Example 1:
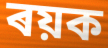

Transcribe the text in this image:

ৰয়ক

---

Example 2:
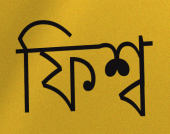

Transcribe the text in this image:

ফিশ্ব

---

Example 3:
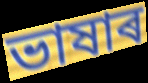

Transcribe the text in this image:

ভাষাৰ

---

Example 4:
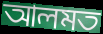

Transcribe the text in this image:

আলমত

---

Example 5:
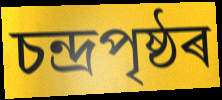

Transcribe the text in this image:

চন্দ্ৰপৃষ্ঠৰ